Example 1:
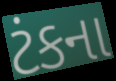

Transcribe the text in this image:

ટંકના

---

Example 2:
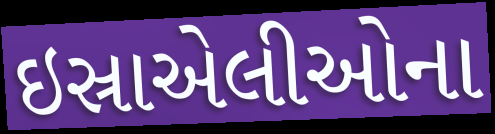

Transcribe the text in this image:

ઇસ્રાએલીઓના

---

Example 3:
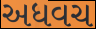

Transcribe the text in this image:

અધવચ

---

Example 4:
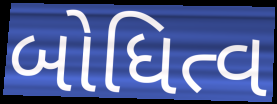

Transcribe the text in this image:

બોધિત્વ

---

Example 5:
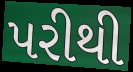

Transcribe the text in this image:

પરીથી